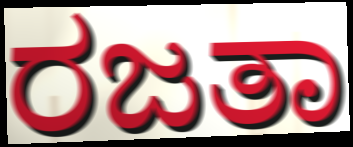
ರಜತಾ